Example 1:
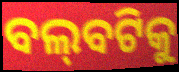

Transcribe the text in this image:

ବଲ୍‌ବଟିକୁ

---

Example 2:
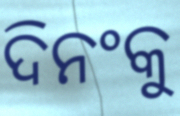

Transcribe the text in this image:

ଦିନଂକୁ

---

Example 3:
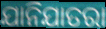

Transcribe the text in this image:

ଯାନିଯାତରା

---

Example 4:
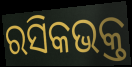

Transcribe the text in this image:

ରସିକଭକ୍ତ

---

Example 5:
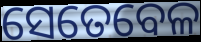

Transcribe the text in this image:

ସେତେବେଳ